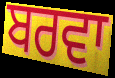
ਬਰਵਾ